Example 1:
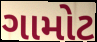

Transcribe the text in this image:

ગામોટ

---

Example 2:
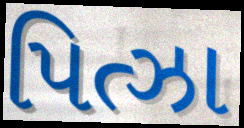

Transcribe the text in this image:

પિત્ઝા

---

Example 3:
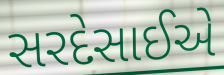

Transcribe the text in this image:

સરદેસાઈએ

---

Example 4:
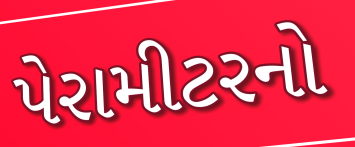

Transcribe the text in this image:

પેરામીટરનો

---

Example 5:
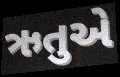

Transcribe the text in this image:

ઋતુએ